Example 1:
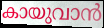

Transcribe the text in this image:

കായുവാൻ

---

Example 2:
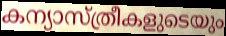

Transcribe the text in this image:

കന്യാസ്ത്രീകളുടെയും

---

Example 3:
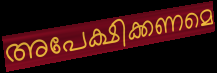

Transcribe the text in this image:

അപേക്ഷിക്കണമെ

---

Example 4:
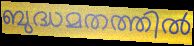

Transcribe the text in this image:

ബുദ്ധമതത്തിൽ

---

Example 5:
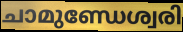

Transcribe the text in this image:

ചാമുണ്ഡേശ്വരി